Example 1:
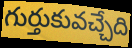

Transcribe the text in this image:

గుర్తుకువచ్చేది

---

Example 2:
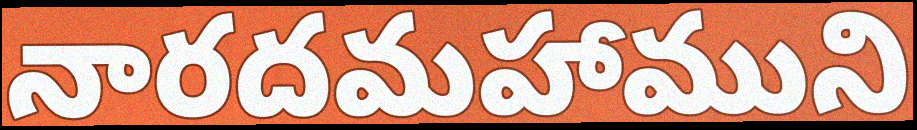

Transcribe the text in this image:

నారదమహాముని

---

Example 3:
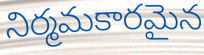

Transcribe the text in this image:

నిర్మమకారమైన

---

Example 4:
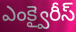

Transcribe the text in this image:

ఎంక్వైరీస్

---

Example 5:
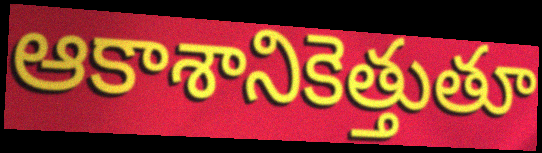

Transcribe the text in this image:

ఆకాశానికెత్తుతూ